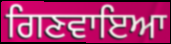
ਗਿਣਵਾਇਆ